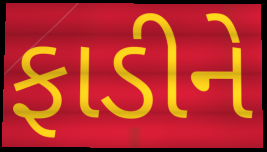
ફાડીને